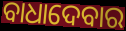
ବାଧାଦେବାର